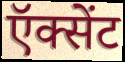
ऍक्सेंट